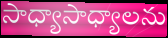
సాధ్యాసాధ్యాలను